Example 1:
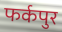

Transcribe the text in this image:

फर्कपुर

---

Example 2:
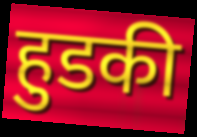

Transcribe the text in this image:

हुडकी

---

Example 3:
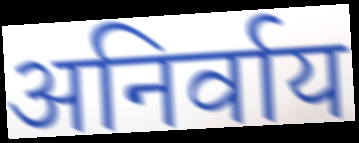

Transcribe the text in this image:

अनिर्वाय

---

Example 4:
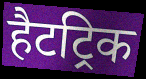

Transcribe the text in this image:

हैटट्रिक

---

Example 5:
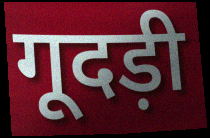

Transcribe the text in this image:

गूदड़ी